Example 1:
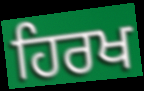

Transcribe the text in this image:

ਹਿਰਖ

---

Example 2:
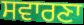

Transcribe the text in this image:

ਸਵਾਰਣਾ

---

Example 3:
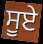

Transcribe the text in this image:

ਸੂਏ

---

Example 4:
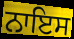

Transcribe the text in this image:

ਨਾਇਸ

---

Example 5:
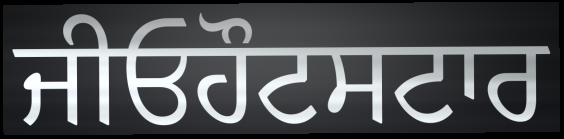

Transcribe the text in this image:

ਜੀਓਹੌਟਸਟਾਰ